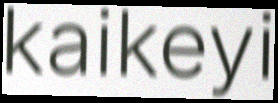
kaikeyi